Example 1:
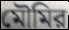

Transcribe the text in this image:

মৌমির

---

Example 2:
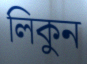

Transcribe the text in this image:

লিকুন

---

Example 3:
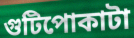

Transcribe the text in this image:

গুটিপোকাটা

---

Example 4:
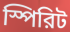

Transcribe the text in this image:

স্পিরিট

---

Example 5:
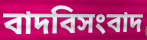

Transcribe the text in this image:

বাদবিসংবাদ